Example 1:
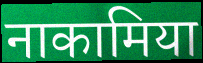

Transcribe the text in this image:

नाकामिया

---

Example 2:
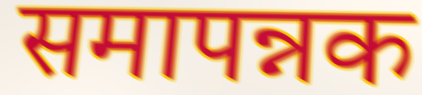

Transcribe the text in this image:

समापन्नक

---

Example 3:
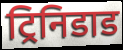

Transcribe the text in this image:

ट्रिनिडाड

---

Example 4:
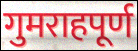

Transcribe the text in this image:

गुमराहपूर्ण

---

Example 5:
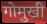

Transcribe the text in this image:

गोमुखी